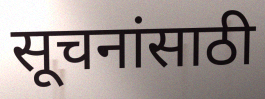
सूचनांसाठी